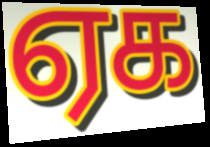
ஏக